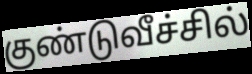
குண்டுவீச்சில்